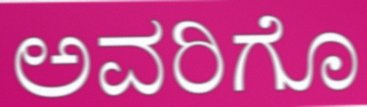
ಅವರಿಗೊ